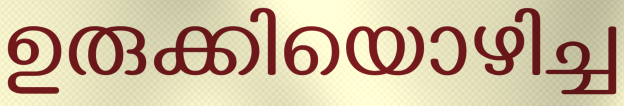
ഉരുക്കിയൊഴിച്ച